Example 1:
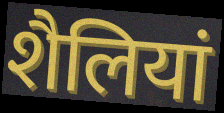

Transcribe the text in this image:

शैलियां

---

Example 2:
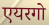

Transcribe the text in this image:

एयरगो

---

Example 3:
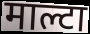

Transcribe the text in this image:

माल्टा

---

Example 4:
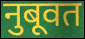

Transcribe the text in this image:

नुबूवत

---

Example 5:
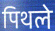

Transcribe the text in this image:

पिथले